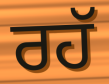
ਰਹੱ